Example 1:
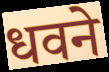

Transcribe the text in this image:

धवने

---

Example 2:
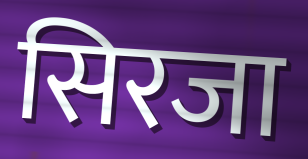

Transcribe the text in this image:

सिरजा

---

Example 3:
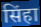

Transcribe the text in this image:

सिंहा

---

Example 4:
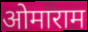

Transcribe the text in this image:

ओमाराम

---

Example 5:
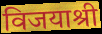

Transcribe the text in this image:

विजयाश्री